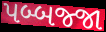
પબ્બજ્જા